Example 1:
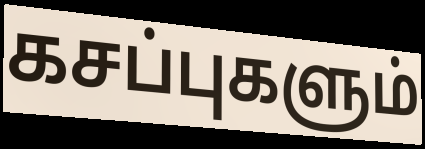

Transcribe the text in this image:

கசப்புகளும்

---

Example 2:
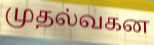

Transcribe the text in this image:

முதல்வகன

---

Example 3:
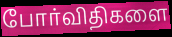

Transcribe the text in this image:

போர்விதிகளை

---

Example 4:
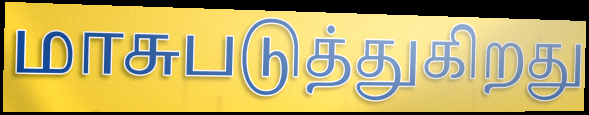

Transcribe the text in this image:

மாசுபடுத்துகிறது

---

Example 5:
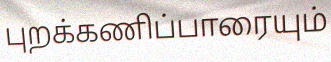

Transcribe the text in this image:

புறக்கணிப்பாரையும்